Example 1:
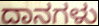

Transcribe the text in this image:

ದಾನಗಳು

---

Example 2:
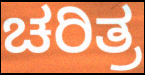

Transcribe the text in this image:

ಚರಿತ್ರ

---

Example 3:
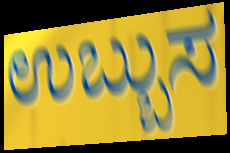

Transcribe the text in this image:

ಉಬ್ಬುಸ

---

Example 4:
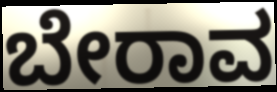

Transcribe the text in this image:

ಬೇರಾವ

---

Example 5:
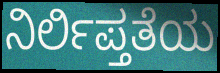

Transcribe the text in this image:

ನಿರ್ಲಿಪ್ತತೆಯ